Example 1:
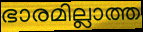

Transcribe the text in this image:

ഭാരമില്ലാത്ത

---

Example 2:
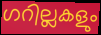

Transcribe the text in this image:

ഗറില്ലകളും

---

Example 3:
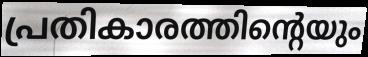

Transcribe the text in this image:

പ്രതികാരത്തിന്റെയും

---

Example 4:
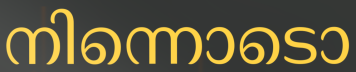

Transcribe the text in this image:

നിന്നൊടൊ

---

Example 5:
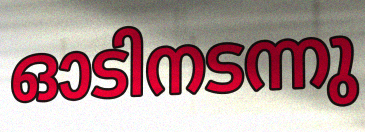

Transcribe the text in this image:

ഓടിനടന്നു